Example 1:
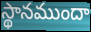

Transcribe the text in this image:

స్థానముందా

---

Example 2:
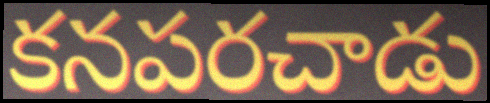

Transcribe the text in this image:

కనపరచాడు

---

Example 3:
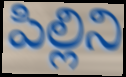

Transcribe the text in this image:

పిల్లిని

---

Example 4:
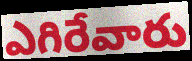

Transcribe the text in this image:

ఎగిరేవారు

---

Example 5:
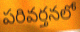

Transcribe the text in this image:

పరివర్తనలో